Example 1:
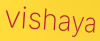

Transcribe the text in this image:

vishaya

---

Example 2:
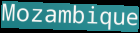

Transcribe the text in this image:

Mozambique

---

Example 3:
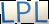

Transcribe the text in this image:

LPL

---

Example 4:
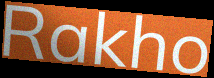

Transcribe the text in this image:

Rakho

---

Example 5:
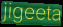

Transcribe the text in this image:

jigeeta